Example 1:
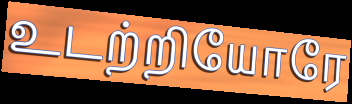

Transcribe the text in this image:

உடற்றியோரே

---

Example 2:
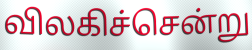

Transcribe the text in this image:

விலகிச்சென்று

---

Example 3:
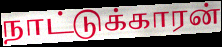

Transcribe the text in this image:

நாட்டுக்காரன்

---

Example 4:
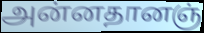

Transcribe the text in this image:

அன்னதானஞ்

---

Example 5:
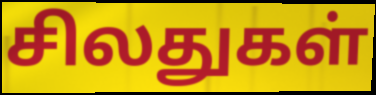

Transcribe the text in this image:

சிலதுகள்